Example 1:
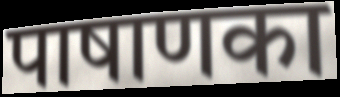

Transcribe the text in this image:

पाषाणका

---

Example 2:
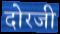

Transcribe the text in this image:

दोरजी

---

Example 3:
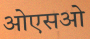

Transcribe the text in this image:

ओएसओ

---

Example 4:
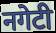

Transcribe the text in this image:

नगेटी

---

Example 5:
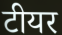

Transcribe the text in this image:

टीयर